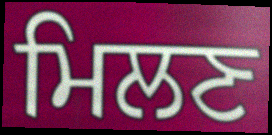
ਮਿਲਣ